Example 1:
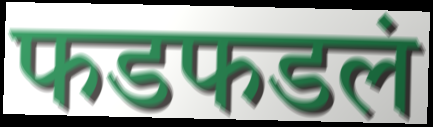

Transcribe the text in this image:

फडफडलं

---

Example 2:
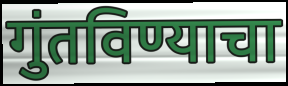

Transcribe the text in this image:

गुंतविण्याचा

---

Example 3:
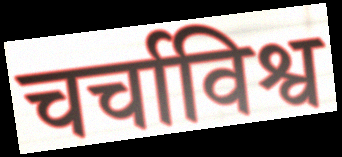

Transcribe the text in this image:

चर्चाविश्व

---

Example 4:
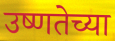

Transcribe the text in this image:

उष्णतेच्या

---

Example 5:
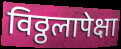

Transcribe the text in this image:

विठ्ठलापेक्षा